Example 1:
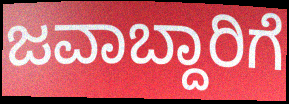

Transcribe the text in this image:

ಜವಾಬ್ದಾರಿಗೆ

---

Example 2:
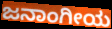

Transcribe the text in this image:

ಜನಾಂಗೀಯ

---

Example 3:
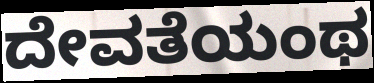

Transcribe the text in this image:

ದೇವತೆಯಂಥ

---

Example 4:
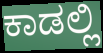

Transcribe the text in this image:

ಕಾಡಲ್ಲಿ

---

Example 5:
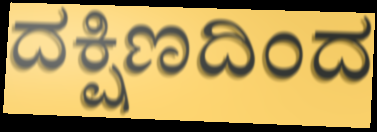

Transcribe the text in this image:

ದಕ್ಷಿಣದಿಂದ